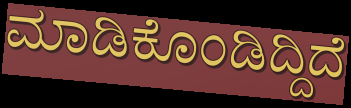
ಮಾಡಿಕೊಂಡಿದ್ದಿದೆ